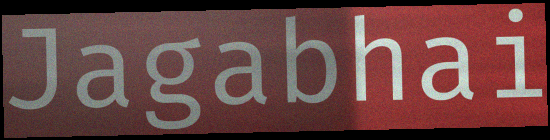
Jagabhai